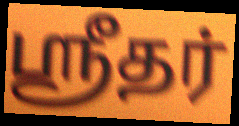
ஸ்ரீதர்